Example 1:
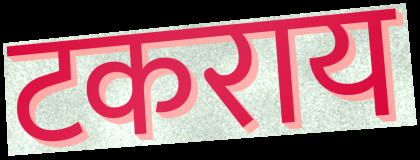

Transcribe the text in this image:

टकराय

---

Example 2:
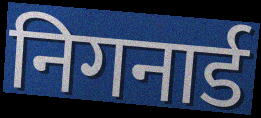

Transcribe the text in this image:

निगनार्ड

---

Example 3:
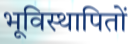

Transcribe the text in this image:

भूविस्थापितों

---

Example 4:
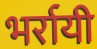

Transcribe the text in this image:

भर्रायी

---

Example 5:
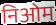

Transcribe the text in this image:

निओम